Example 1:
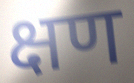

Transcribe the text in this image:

क्षण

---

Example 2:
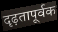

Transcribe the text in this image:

दृढ़तापूर्वक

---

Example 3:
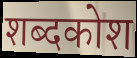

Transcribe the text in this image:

शब्दकोश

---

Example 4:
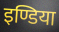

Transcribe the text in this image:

इण्डिया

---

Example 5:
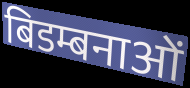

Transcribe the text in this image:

बिडम्बनाओं